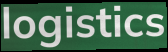
logistics